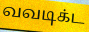
வவடிக்ட